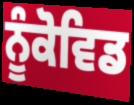
ਨੂੰਕੋਵਿਡ